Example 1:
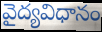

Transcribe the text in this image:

వైద్యవిధానం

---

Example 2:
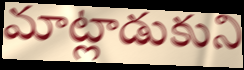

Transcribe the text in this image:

మాట్లాడుకుని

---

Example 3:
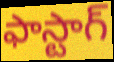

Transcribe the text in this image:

ఫాస్టాగ్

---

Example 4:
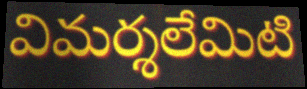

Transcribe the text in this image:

విమర్శలేమిటి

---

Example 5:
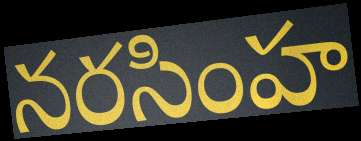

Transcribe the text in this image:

నరసింహ